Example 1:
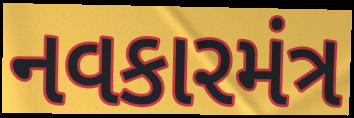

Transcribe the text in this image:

નવકારમંત્ર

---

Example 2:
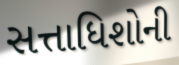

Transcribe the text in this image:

સત્તાધિશોની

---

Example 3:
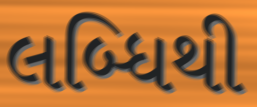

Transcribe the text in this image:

લબ્ધિથી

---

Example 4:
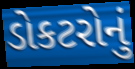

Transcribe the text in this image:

ડોકટરોનું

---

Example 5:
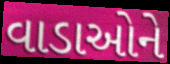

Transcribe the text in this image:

વાડાઓને